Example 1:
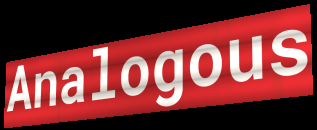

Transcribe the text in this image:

Analogous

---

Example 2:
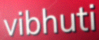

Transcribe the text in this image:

vibhuti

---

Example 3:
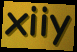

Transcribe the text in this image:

xiiy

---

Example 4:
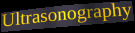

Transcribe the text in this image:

Ultrasonography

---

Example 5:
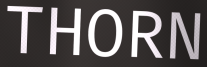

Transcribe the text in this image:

THORN